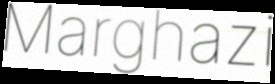
Marghazi